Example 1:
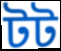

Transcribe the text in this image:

টট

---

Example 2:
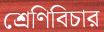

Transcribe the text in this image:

শ্রেণিবিচার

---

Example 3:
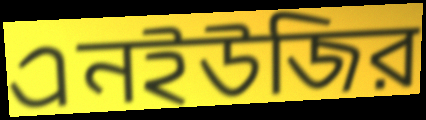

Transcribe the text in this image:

এনইউজির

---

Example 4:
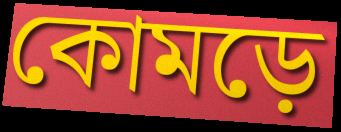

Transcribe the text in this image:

কোমড়ে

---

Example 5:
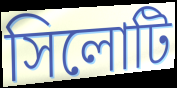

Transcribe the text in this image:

সিলোটি